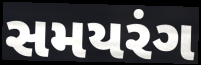
સમયરંગ